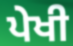
ਪੇਖੀ